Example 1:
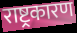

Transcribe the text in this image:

राष्ट्रकारण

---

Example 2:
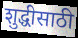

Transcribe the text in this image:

शुद्धीसाठी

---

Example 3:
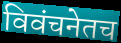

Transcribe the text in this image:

विवंचनेतच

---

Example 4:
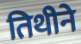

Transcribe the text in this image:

तिथीने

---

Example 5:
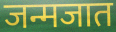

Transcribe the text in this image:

जन्मजात